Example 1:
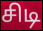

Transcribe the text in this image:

சிடி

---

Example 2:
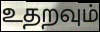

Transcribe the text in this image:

உதறவும்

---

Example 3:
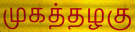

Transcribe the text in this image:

முகத்தழகு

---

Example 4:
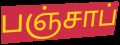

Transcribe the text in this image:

பஞ்சாப்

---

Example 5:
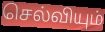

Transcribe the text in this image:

செல்வியும்